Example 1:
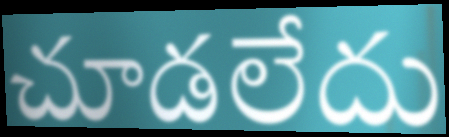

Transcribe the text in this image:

చూడలేదు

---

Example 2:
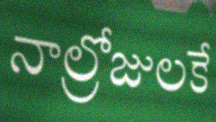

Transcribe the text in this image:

నాల్రోజులకే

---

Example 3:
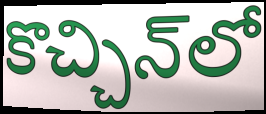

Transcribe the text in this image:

కొచ్చిన్‌లో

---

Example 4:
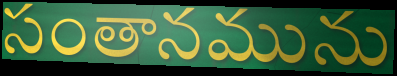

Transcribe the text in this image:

సంతానమును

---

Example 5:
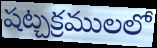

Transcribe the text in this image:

షట్చక్రములలో